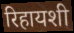
रिहायशी